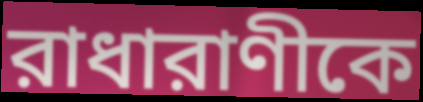
রাধারাণীকে